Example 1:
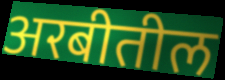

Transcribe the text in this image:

अरबीतील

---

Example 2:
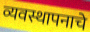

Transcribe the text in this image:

व्यवस्थापनाचे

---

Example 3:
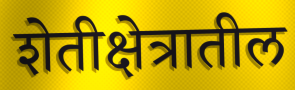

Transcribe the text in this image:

शेतीक्षेत्रातील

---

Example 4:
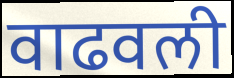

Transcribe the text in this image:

वाढवली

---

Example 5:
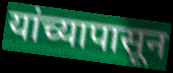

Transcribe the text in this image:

यांच्यापासून